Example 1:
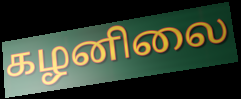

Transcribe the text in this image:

கழனிலை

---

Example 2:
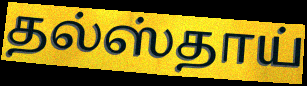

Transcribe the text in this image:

தல்ஸ்தாய்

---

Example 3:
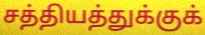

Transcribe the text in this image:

சத்தியத்துக்குக்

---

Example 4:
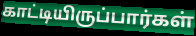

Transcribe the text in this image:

காட்டியிருப்பார்கள்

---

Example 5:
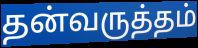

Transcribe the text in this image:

தன்வருத்தம்